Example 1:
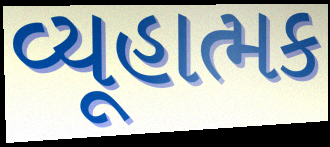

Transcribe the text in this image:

વ્યૂહાત્મક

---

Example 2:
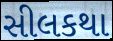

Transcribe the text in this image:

સીલકથા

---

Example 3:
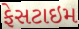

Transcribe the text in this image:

ફેસટાઇમ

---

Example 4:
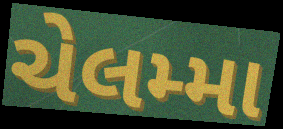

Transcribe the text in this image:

ચેલમ્મા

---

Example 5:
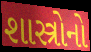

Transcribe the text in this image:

શાસ્ત્રોનો